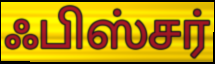
ஃபிஸ்சர்